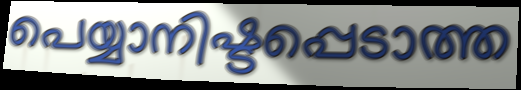
പെയ്യാനിഷ്ടപ്പെടാത്ത